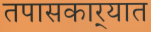
तपासकार्यात